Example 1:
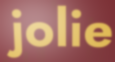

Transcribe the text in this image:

jolie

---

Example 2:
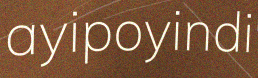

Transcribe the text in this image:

ayipoyindi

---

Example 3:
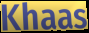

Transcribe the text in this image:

Khaas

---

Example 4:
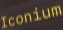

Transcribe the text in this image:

Iconium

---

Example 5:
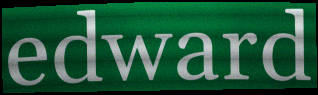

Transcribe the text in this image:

edward